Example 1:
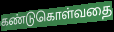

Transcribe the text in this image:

கண்டுகொள்வதை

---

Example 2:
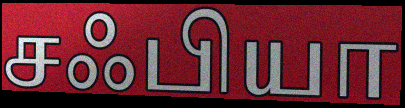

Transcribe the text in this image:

சஃபியா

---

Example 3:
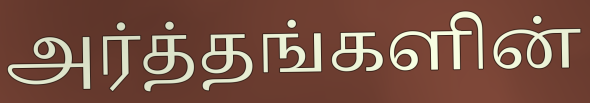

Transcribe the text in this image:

அர்த்தங்களின்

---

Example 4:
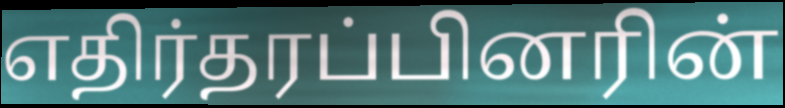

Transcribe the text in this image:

எதிர்தரப்பினரின்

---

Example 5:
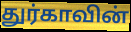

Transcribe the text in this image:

துர்காவின்